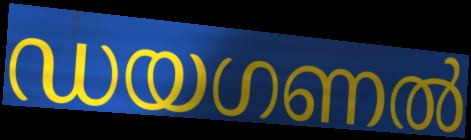
ഡയഗണൽ